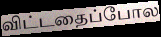
விட்டதைப்போல